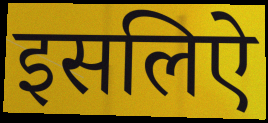
इसलिऐ